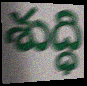
శుద్ధి